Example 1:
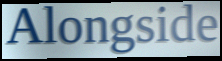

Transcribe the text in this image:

Alongside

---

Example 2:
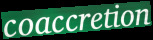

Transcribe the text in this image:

coaccretion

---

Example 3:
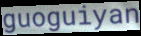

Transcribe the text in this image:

guoguiyan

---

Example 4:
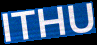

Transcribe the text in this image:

ITHU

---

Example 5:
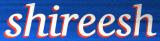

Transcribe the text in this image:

shireesh